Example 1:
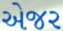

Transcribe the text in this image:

એજર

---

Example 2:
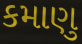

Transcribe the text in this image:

કમાણુ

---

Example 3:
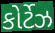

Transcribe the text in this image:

કોર્ટેઝ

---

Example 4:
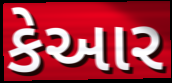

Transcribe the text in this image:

કેઆર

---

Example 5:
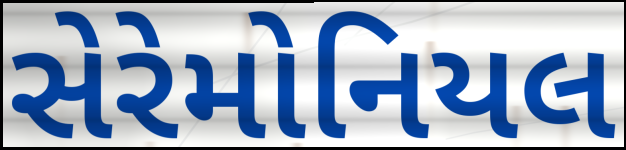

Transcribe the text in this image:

સેરેમોનિયલ